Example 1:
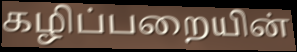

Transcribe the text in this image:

கழிப்பறையின்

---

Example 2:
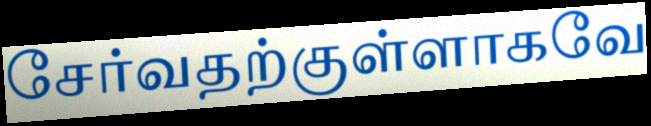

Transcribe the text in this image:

சேர்வதற்குள்ளாகவே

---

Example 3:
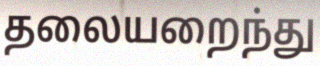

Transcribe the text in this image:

தலையறைந்து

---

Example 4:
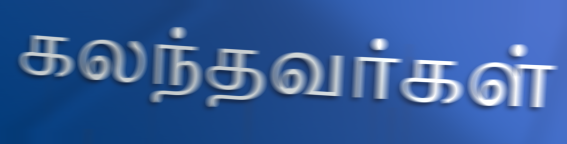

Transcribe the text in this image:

கலந்தவர்கள்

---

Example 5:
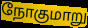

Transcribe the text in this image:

நோகுமாறு